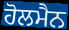
ਹੋਲਮੈਨ